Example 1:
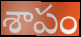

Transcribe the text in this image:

శాపం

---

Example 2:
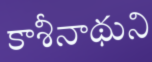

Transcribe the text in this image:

కాశీనాథుని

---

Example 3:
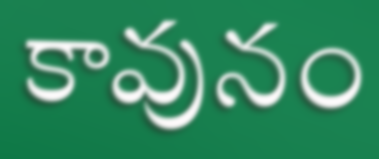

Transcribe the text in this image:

కావునం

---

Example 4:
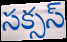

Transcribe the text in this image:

సక్సస్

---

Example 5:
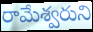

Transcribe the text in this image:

రామేశ్వరుని